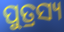
ପୁତ୍ରସ୍ୟ